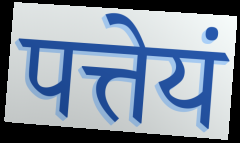
पत्तेयं